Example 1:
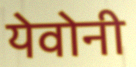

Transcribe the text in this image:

येवोनी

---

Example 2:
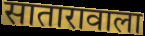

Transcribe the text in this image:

सातारावाला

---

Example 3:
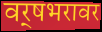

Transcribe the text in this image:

वर्षभरावर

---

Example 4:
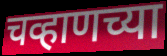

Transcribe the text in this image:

चव्हाणच्या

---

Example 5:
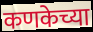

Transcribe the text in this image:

कणकेच्या